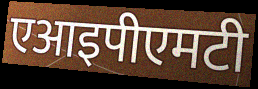
एआइपीएमटी